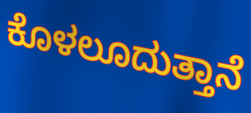
ಕೊಳಲೂದುತ್ತಾನೆ